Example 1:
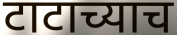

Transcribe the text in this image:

टाटाच्याच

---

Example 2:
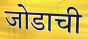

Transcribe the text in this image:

जोडाची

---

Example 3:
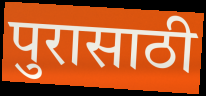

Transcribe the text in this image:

पुरासाठी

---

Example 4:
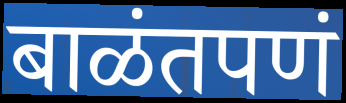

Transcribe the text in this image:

बाळंतपणं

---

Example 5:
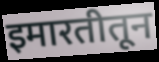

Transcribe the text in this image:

इमारतीतून